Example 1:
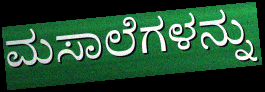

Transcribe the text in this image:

ಮಸಾಲೆಗಳನ್ನು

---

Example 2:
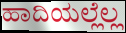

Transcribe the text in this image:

ಹಾದಿಯಲ್ಲೆಲ್ಲ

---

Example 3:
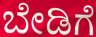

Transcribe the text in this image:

ಬೇಡಿಗೆ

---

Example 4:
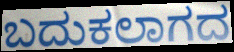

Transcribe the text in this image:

ಬದುಕಲಾಗದ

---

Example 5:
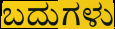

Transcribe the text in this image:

ಬದುಗಳು